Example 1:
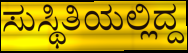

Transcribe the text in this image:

ಸುಸ್ಥಿತಿಯಲ್ಲಿದ್ದ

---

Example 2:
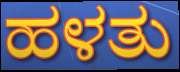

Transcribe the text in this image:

ಹಳತು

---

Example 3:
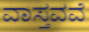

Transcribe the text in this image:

ವಾಸ್ತವವೆ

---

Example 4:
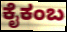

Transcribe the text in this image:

ಕೈಕಂಬ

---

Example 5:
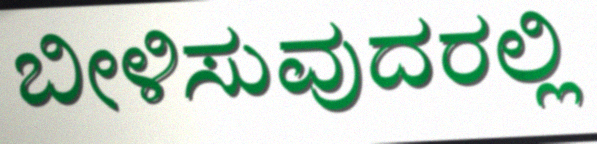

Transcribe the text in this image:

ಬೀಳಿಸುವುದರಲ್ಲಿ